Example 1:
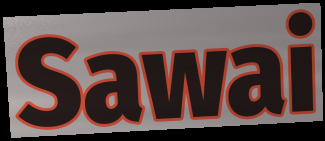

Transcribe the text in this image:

Sawai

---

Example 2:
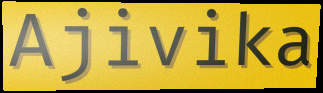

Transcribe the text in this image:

Ajivika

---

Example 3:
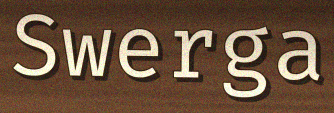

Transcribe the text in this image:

Swerga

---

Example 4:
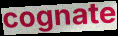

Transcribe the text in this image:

cognate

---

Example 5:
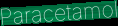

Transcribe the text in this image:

Paracetamol